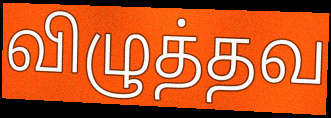
விழுத்தவ